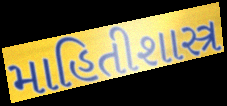
માહિતીશાસ્ત્ર